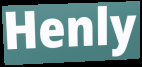
Henly